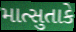
માત્સુતાકે